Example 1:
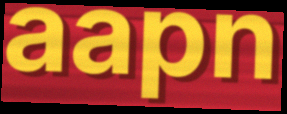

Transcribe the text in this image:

aapn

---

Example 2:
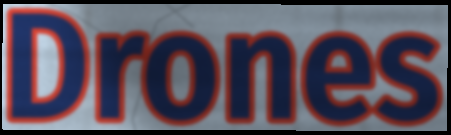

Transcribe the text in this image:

Drones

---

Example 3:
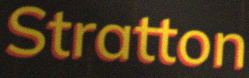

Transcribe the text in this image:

Stratton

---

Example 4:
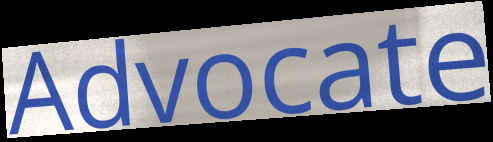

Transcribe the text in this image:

Advocate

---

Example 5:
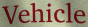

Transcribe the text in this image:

Vehicle